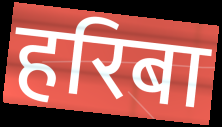
हरिबा